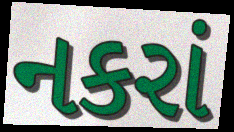
નકરાં